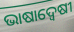
ଭାଷାଦ୍ଵେଷୀ